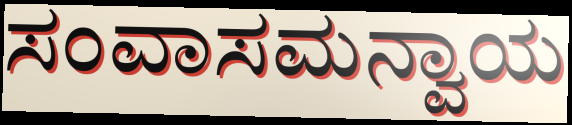
ಸಂವಾಸಮನ್ವಾಯ